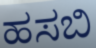
ಹಸಬಿ